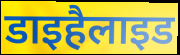
डाइहैलाइड